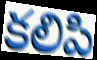
కలిపి